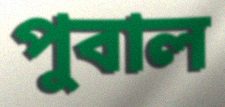
পুবাল